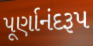
પૂર્ણાનંદરૂપ